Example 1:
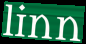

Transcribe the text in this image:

linn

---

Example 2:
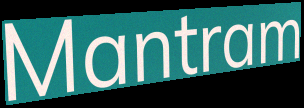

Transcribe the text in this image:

Mantram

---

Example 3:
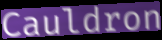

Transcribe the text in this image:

Cauldron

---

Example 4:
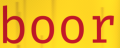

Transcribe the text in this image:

boor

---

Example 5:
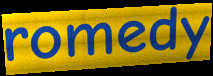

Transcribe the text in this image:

romedy